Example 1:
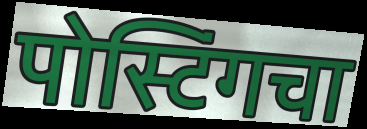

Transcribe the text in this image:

पोस्टिंगचा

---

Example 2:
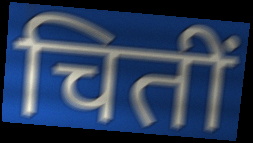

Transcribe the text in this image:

चितीं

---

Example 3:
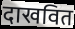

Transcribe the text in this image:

दाखवित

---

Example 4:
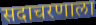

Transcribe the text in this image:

सदाचरणाला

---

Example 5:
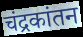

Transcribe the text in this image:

चंद्रकांतन